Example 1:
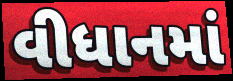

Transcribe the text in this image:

વીધાનમાં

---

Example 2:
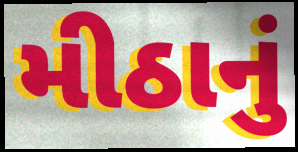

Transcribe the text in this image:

મીઠાનું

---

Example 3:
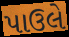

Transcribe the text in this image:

પાઉલે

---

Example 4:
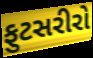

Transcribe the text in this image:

ફુટસરીરો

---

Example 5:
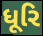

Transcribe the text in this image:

ધૂરિ